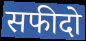
सफीदो